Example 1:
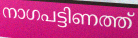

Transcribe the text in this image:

നാഗപട്ടിണത്ത്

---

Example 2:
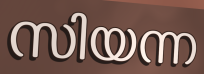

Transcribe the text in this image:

സിയന്ന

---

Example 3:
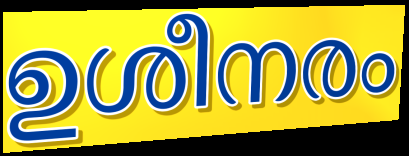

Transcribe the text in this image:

ഉശീനരം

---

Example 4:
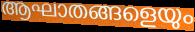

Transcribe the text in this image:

ആഘാതങ്ങളെയും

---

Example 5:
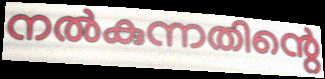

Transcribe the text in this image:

നൽകുന്നതിന്റെ